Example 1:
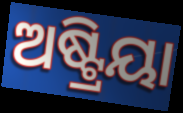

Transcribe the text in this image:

ଅଷ୍ଟ୍ରିୟା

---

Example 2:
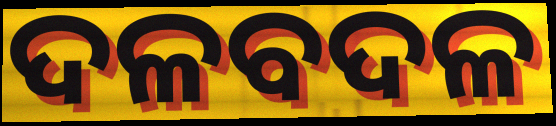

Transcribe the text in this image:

ଦଳବଦଳ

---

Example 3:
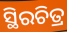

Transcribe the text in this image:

ସ୍ଥିରଚିତ୍ର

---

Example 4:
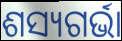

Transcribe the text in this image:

ଶସ୍ୟଗର୍ଭା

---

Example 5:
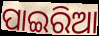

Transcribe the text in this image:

ପାଇରିଆ